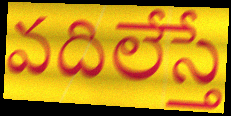
వదిలేస్తే